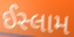
ઈસ્લામ